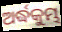
ଅର୍ଦ୍ଧକୁମ୍ଭ